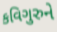
કવિગુરુને